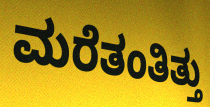
ಮರೆತಂತಿತ್ತು